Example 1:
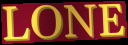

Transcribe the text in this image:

LONE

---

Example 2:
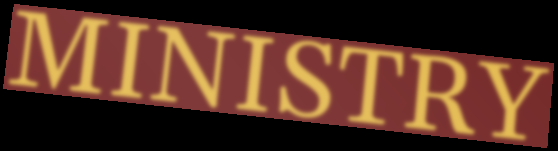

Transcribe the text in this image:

MINISTRY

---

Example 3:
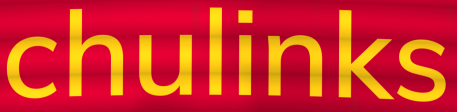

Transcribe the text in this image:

chulinks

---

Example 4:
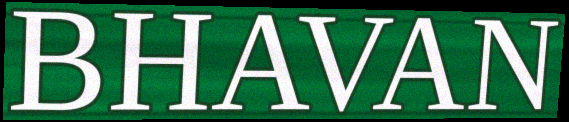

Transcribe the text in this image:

BHAVAN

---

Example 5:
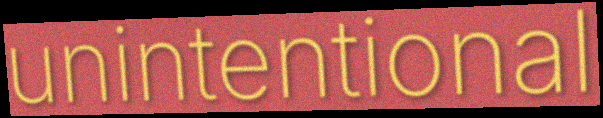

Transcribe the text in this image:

unintentional